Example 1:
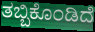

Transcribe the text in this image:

ತಬ್ಬಿಕೊಂಡಿದೆ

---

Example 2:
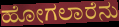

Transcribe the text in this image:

ಹೋಗಲಾರೆನು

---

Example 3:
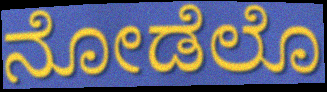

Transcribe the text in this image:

ನೋಡೆಲೊ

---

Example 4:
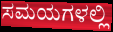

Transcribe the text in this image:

ಸಮಯಗಳಲ್ಲಿ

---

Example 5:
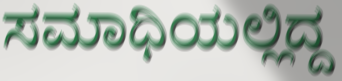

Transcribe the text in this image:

ಸಮಾಧಿಯಲ್ಲಿದ್ದ